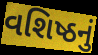
વશિષ્ઠનું